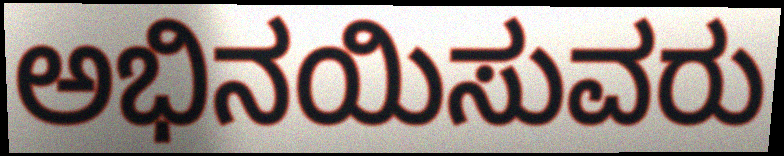
ಅಭಿನಯಿಸುವರು